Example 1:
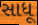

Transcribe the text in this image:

સાધૂ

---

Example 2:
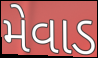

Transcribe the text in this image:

મેવાડ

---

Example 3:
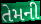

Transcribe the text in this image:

તેમની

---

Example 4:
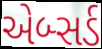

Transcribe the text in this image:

એબ્સર્ડ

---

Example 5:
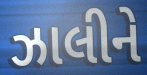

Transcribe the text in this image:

ઝાલીને